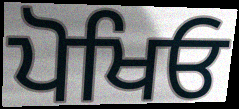
ਪੋਖਿਓ